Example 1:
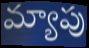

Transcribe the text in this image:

మ్యాపు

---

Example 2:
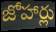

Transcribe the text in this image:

జోహార్లు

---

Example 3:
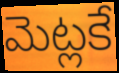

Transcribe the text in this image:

మెట్లకే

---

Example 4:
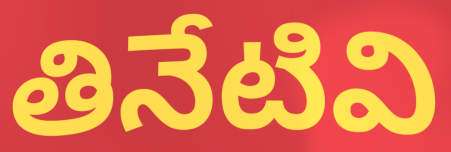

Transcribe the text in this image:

తినేటివి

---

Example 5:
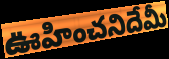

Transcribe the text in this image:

ఊహించనిదేమీ